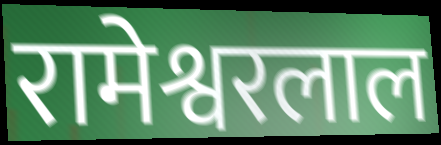
रामेश्वरलाल